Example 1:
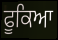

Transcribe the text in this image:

ਫੂਕਿਆ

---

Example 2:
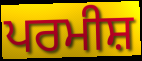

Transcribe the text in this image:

ਪਰਮੀਸ਼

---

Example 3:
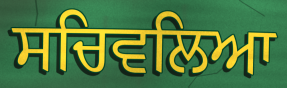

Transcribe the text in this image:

ਸਚਿਵਲਿਆ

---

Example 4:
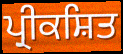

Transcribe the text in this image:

ਪ੍ਰੀਕਸ਼ਿਤ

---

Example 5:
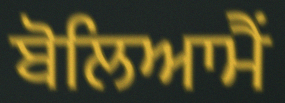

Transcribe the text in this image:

ਬੋਲਿਆਮੈਂ